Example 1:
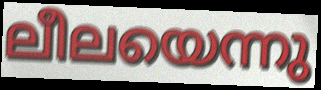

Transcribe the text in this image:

ലീലയെന്നു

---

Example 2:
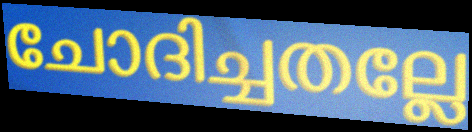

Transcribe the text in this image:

ചോദിച്ചതല്ലേ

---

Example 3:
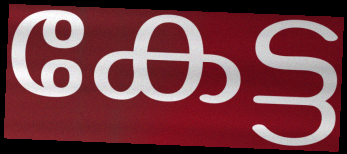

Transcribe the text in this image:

കേട്ട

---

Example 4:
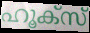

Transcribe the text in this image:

ഹൂക്സ്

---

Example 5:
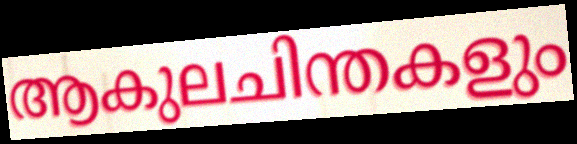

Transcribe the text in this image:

ആകുലചിന്തകളും